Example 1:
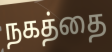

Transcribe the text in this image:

நகத்தை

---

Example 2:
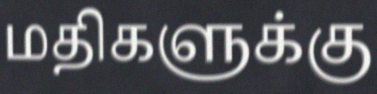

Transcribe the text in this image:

மதிகளுக்கு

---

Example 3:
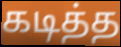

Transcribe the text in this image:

கடித்த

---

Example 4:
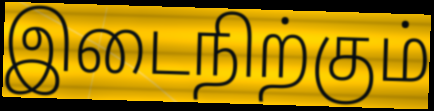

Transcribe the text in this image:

இடைநிற்கும்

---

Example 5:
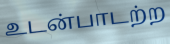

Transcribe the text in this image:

உடன்பாடற்ற